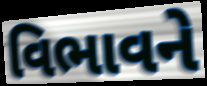
વિભાવને